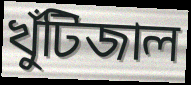
খুঁটিজাল